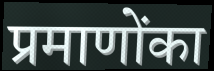
प्रमाणोंका